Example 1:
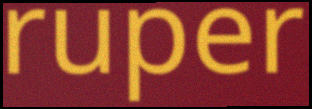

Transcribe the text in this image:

ruper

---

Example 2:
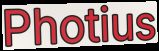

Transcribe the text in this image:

Photius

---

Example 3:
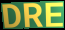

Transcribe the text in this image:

DRE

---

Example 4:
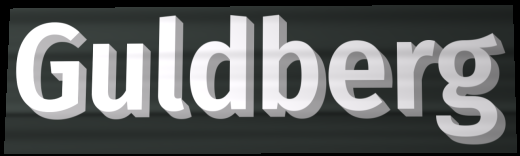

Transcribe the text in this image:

Guldberg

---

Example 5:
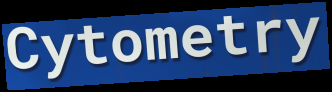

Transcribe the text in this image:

Cytometry